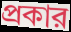
প্রকার